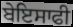
ਬੇਇਸਾਫੀ